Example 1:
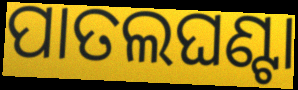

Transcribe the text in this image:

ପାତଲଘଣ୍ଟା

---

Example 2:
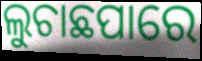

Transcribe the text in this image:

ଲୁଚାଛପାରେ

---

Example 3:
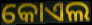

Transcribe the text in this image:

କୋଏଲ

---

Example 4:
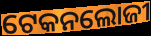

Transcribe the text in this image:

ଟେକନଲୋଜୀ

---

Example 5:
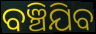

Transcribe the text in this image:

ବଞ୍ଚିଯିବ